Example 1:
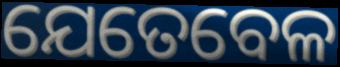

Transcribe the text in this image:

ଯେତେବେଳ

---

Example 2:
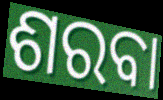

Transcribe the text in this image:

ଶରବା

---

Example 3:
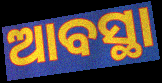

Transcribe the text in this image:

ଆବସ୍ଥା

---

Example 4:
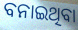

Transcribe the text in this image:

ବନାଇଥିବା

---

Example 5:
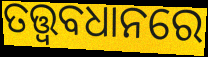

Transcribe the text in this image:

ତତ୍ତ୍ୱବଧାନରେ